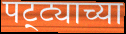
पट्ट्याच्या